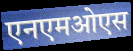
एनएमओएस